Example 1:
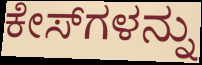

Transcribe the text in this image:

ಕೇಸ್‌ಗಳನ್ನು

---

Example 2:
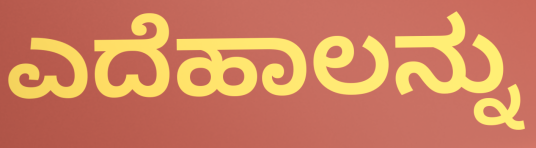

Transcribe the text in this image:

ಎದೆಹಾಲನ್ನು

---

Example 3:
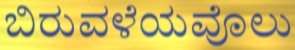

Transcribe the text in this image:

ಬಿರುವಳೆಯವೊಲು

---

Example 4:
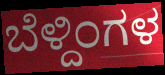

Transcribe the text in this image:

ಬೆಳ್ದಿಂಗಳ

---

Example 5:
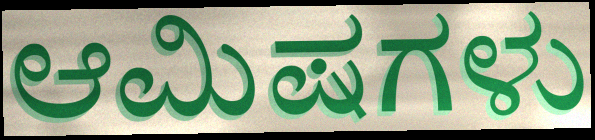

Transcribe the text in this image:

ಆಮಿಷಗಳು